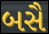
બસૈ